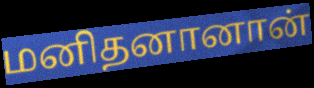
மனிதனானான்